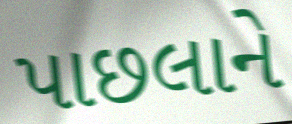
પાછલાને